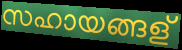
സഹായങ്ങള്